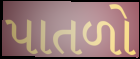
પાતળો